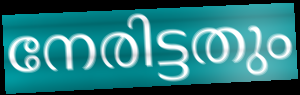
നേരിട്ടതും